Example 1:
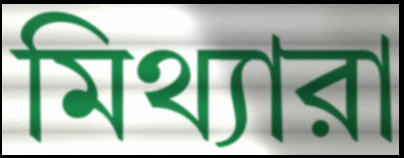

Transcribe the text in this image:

মিথ্যারা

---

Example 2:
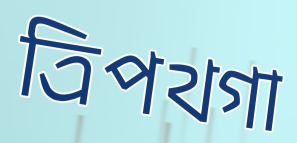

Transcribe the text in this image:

ত্রিপথগা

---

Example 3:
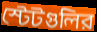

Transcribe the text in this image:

স্টেটগুলির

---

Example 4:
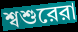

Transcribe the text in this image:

শ্বশুরেরা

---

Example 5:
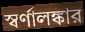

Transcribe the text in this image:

স্বর্ণালঙ্কার